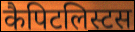
कैपिटलिस्टस